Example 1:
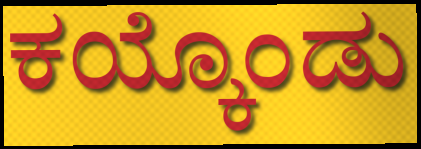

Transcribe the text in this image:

ಕಯ್ಕೊಂಡು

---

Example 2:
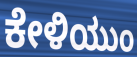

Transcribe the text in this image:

ಕೇಳಿಯುಂ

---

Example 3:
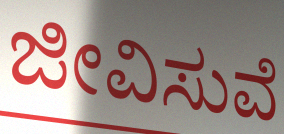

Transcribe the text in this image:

ಜೀವಿಸುವೆ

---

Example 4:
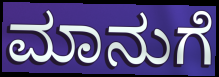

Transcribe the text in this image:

ಮಾನುಗೆ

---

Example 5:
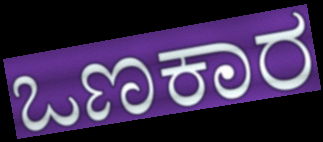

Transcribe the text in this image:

ಒಣಕಾರ